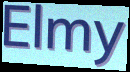
Elmy